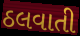
ઠલવાતી